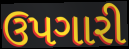
ઉપગારી